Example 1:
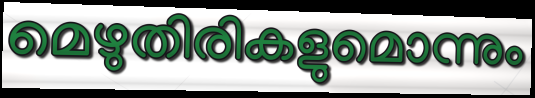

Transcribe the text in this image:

മെഴുതിരികളുമൊന്നും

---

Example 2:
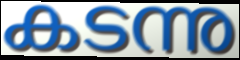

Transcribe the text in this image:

കടന്നു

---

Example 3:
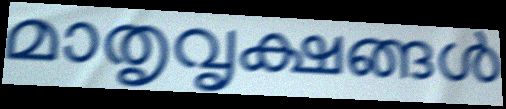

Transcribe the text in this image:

മാതൃവൃക്ഷങ്ങൾ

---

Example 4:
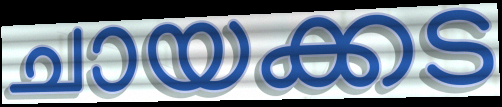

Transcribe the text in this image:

ചായക്കട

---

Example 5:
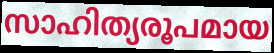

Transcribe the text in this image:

സാഹിത്യരൂപമായ